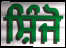
ਸ਼ਿੰਜੋ